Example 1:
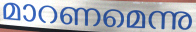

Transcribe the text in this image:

മാറണമെന്നു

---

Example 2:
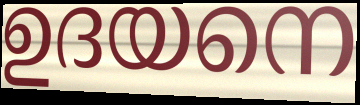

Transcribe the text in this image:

ഉദയനെ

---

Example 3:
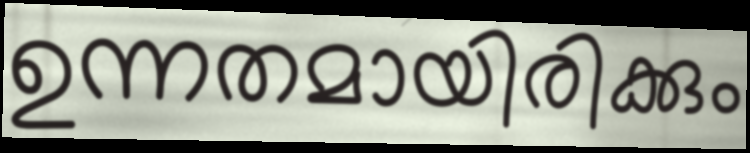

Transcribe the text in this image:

ഉന്നതമായിരിക്കും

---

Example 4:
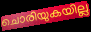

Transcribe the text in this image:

ചൊരിയുകയില്ല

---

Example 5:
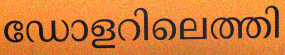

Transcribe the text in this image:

ഡോളറിലെത്തി